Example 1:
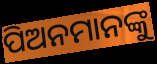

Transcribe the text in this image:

ପିଅନମାନଙ୍କୁ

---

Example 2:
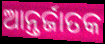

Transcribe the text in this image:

ଆନ୍ତର୍ଜାତକ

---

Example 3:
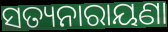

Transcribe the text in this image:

ସତ୍ୟନାରାୟଣା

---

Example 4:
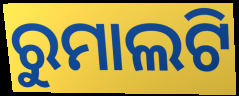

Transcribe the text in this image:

ରୁମାଲଟି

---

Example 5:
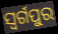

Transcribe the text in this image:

ସ୍ଵର୍ଗପୁର